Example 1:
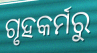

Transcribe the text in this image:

ଗୃହକର୍ମରୁ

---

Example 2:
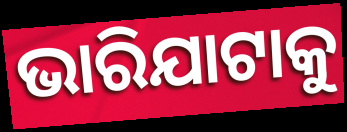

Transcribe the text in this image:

ଭାରିଯାଟାକୁ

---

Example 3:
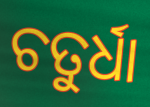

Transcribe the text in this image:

ଚତୁର୍ଧା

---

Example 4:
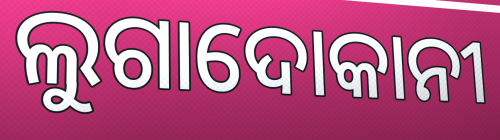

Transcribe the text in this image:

ଲୁଗାଦୋକାନୀ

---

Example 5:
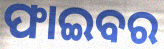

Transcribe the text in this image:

ଫାଇବର